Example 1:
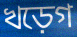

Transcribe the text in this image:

খড়েগ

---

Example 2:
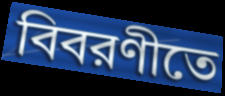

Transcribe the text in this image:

বিবরণীতে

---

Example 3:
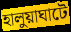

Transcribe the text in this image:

হালুয়াঘাটে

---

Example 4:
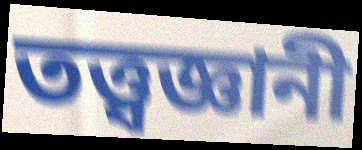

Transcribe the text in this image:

তত্ত্বজ্ঞানী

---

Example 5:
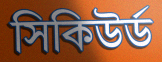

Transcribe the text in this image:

সিকিউর্ড